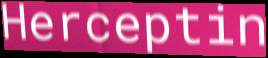
Herceptin